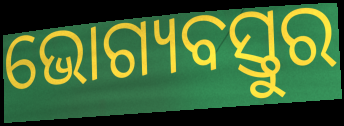
ଭୋଗ୍ୟବସ୍ତୁର